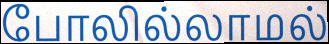
போலில்லாமல்